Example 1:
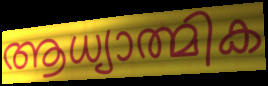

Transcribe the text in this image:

ആധ്യാത്മിക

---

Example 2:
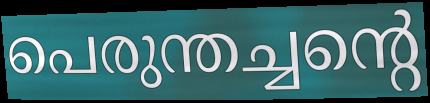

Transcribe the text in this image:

പെരുന്തച്ചന്റെ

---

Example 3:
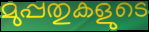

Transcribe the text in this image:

മുപ്പതുകളുടെ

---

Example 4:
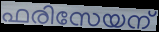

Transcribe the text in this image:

ഫരിസേയന്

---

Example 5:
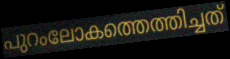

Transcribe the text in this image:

പുറംലോകത്തെത്തിച്ചത്